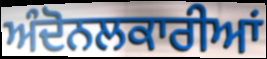
ਅੰਦੋਨਲਕਾਰੀਆਂ